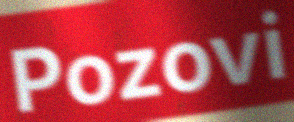
Pozovi